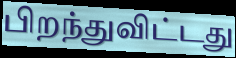
பிறந்துவிட்டது